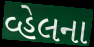
વ્હેલના